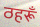
ठहरूँ